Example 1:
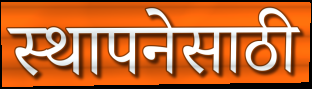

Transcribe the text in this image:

स्थापनेसाठी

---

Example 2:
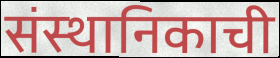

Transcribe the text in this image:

संस्थानिकाची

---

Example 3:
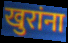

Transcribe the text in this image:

खुरांना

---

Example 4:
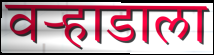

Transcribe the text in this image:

वऱ्हाडाला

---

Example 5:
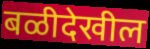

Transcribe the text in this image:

बळीदेखील